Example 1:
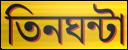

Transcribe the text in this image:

তিনঘন্টা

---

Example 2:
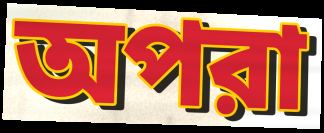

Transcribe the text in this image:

অপরা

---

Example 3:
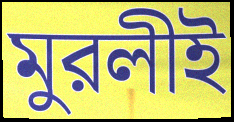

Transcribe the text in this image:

মুরলীই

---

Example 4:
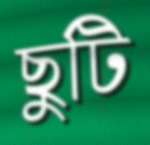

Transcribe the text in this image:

ছুটি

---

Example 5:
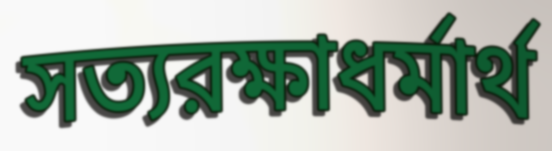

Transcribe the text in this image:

সত্যরক্ষাধর্মার্থ